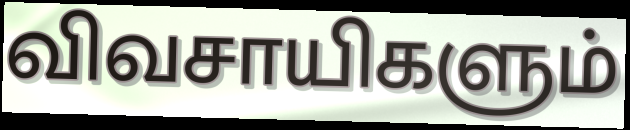
விவசாயிகளும்